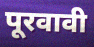
पूरवावी